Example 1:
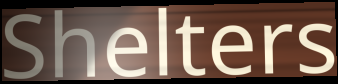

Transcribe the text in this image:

Shelters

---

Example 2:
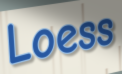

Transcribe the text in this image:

Loess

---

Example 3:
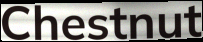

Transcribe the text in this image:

Chestnut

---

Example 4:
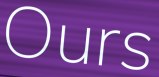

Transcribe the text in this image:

Ours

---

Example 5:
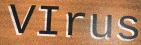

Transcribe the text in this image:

VIrus